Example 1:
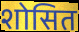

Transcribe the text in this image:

शोसित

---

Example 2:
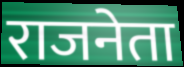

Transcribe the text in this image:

राजनेता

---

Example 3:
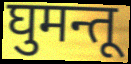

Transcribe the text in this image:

घुमन्तू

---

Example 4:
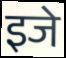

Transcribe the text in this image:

इजे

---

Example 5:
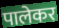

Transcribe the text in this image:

पालेकर